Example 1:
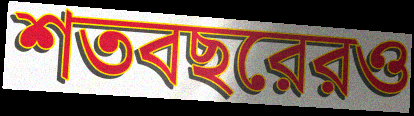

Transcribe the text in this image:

শতবছরেরও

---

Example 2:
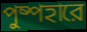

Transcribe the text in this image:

পুষ্পহারে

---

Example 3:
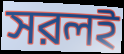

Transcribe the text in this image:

সরলই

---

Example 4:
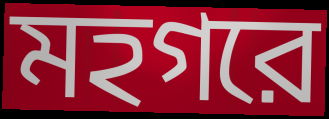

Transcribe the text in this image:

মহগরে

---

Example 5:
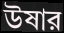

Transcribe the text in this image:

উষার